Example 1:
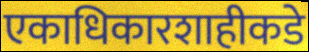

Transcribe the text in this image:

एकाधिकारशाहीकडे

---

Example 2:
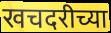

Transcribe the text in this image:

खचदरीच्या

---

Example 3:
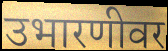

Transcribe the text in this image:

उभारणीवर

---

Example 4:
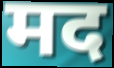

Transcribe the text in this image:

मद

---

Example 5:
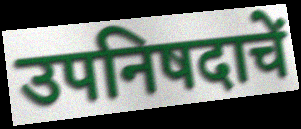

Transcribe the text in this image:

उपनिषदाचें